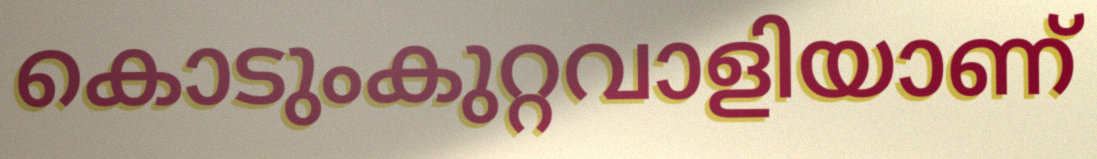
കൊടുംകുറ്റവാളിയാണ്